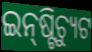
ଇନ୍‍ଷ୍ଟିଚ୍ୟୁଟ